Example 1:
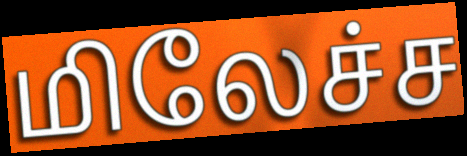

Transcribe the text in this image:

மிலேச்ச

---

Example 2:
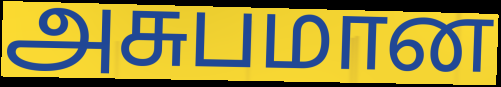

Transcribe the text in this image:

அசுபமான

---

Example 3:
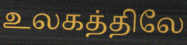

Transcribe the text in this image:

உலகத்திலே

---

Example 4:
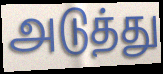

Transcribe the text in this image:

அடுத்து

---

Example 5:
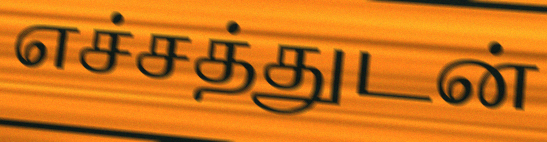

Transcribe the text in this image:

எச்சத்துடன்